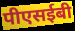
पीएसईबी